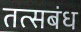
तत्सबंध